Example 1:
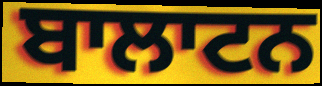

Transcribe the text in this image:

ਬਾਲਾਟਨ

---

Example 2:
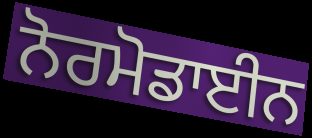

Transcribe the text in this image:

ਨੋਰਮੋਡਾਈਨ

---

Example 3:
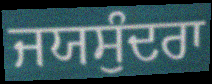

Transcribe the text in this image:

ਜਯਸੁੰਦਰਾ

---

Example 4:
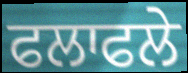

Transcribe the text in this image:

ਫਲਾਫਲੇ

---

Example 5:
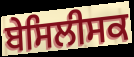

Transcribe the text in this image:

ਬੇਸਿਲੀਸਕ